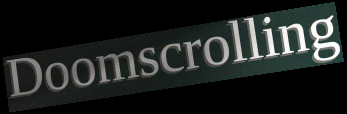
Doomscrolling